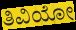
ತಿವಿಯೋ